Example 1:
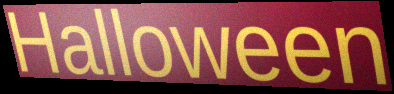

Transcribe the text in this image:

Halloween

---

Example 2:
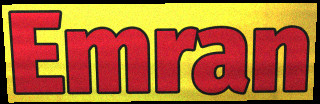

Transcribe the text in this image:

Emran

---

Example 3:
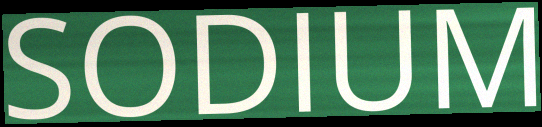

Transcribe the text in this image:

SODIUM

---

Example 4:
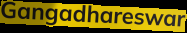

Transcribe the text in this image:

Gangadhareswar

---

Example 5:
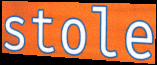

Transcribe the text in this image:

stole